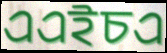
এএইচএ